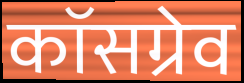
कॉसग्रेव